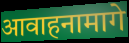
आवाहनामागे